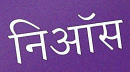
निऑस